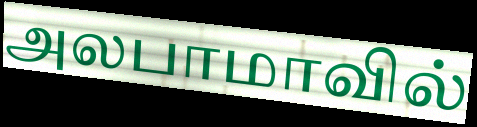
அலபாமாவில்